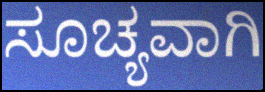
ಸೂಚ್ಯವಾಗಿ